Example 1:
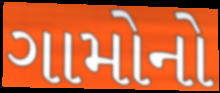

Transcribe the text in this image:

ગામોનો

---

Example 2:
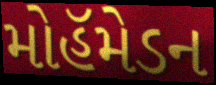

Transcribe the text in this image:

મોહૅમેડન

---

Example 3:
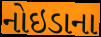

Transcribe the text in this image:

નોઇડાના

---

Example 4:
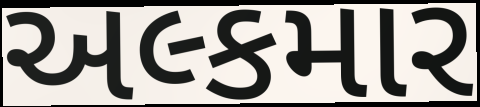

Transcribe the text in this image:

અલ્કમાર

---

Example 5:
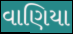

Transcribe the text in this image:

વાણિયા